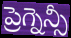
ప్రెగ్నెన్సీ